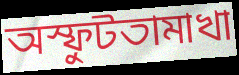
অস্ফুটতামাখা